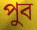
পুব